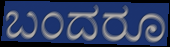
ಬಂದರೂ